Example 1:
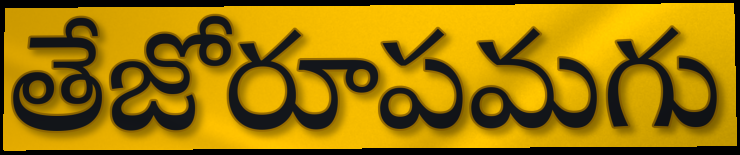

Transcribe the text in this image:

తేజోరూపమగు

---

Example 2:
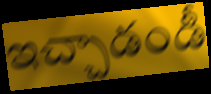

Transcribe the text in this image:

ఇచ్చాడండీ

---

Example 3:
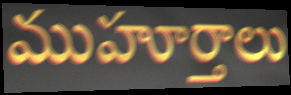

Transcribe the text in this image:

ముహూర్తాలు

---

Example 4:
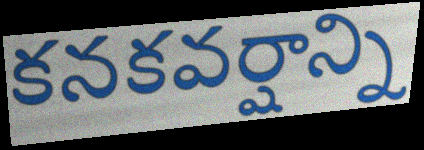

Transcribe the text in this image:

కనకవర్షాన్ని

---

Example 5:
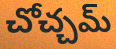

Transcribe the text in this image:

చోచ్చమ్